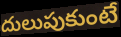
దులుపుకుంటే